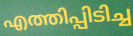
എത്തിപ്പിടിച്ച